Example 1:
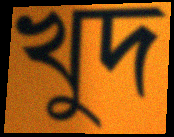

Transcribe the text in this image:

খুদ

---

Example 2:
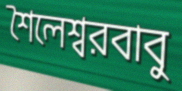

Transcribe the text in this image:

শৈলেশ্বরবাবু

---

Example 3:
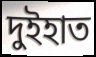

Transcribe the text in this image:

দুইহাত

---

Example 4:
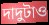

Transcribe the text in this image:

দাদুটাও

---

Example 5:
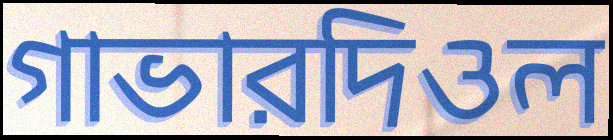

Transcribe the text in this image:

গাভারদিওল